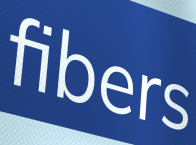
fibers